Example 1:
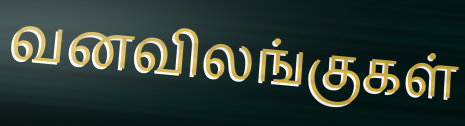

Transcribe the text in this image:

வனவிலங்குகள்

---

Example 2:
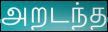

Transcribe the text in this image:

அறடந்த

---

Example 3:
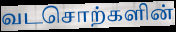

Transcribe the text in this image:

வடசொற்களின்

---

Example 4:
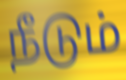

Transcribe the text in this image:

நீடும்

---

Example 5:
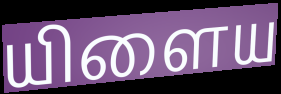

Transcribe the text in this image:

யிளைய